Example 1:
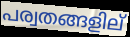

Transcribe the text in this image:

പര്വതങ്ങളില്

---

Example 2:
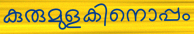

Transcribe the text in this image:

കുരുമുളകിനൊപ്പം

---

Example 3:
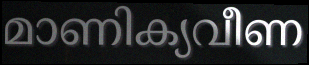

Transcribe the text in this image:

മാണിക്യവീണ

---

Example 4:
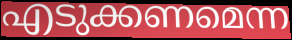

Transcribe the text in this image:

എടുക്കണമെന്ന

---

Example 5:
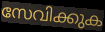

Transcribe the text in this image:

സേവിക്കുക